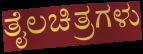
ತೈಲಚಿತ್ರಗಳು